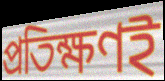
প্রতিক্ষণই